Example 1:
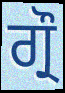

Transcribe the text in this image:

ਗ੍ਰੌ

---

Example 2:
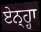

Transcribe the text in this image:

ਏਨ੍ਹ੍ਹਾ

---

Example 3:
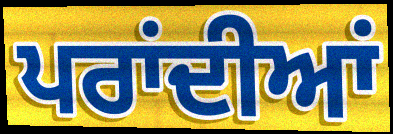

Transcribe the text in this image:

ਪਰਾਂਦੀਆਂ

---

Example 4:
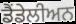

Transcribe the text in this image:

ਡੈਂਡੇਲੀਅਨ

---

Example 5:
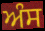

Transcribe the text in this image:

ਅੰਸ